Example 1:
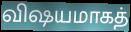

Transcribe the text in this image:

விஷயமாகத்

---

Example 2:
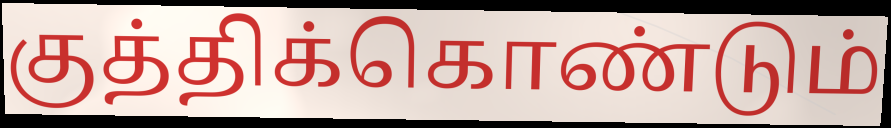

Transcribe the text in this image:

குத்திக்கொண்டும்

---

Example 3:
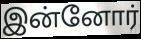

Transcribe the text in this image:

இன்னோர்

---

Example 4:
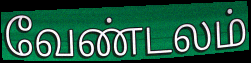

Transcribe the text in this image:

வேண்டலம்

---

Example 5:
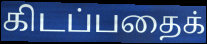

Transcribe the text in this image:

கிடப்பதைக்